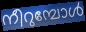
നീറുമ്പോൾ